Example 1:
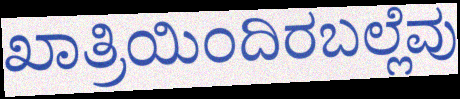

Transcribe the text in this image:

ಖಾತ್ರಿಯಿಂದಿರಬಲ್ಲೆವು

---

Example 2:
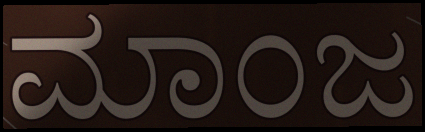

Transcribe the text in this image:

ಮಾಂಜ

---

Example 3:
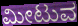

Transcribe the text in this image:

ಮೀಟುವ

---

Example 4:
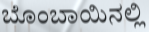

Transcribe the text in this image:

ಬೊಂಬಾಯಿನಲ್ಲಿ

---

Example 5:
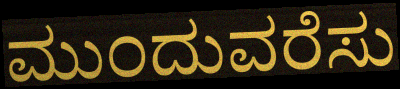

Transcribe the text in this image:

ಮುಂದುವರೆಸು